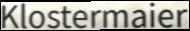
Klostermaier